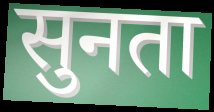
सुनता